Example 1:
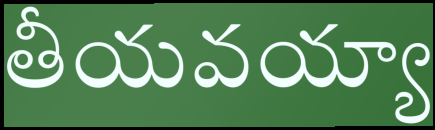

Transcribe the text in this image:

తీయవయ్యా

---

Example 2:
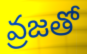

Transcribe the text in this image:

వ్రజతో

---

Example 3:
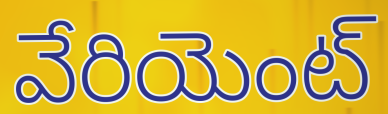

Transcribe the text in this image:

వేరియెంట్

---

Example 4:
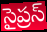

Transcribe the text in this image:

సైప్రస్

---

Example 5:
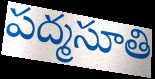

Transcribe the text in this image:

పద్మసూతి